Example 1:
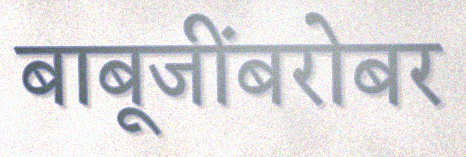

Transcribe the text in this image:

बाबूजींबरोबर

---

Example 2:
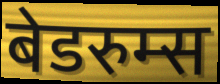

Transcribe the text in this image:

बेडरुम्स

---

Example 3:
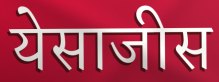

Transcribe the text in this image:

येसाजीस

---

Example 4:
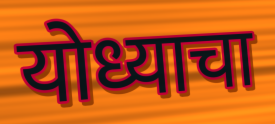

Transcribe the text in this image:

योध्याचा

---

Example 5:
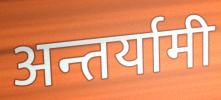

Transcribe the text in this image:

अन्तर्यामी